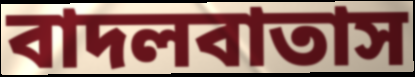
বাদলবাতাস